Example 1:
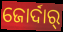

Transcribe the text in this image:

ଜୋର୍ଦାର୍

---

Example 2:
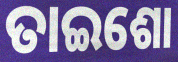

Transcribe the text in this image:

ତାଇଶୋ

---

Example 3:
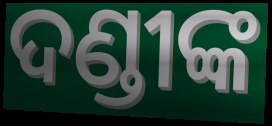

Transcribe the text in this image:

ଦଣ୍ଡୀଙ୍କ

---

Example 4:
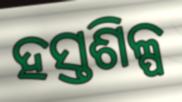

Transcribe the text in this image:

ହସ୍ତଶିଳ୍ପ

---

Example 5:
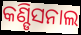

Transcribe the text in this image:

କଣ୍ଡିସନାଲ